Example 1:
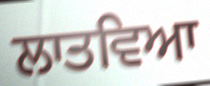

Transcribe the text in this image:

ਲਾਤਵਿਆ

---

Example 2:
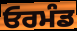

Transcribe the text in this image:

ਓਰਮੰਡ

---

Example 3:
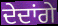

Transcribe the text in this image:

ਦੇਦਾਂਗੇ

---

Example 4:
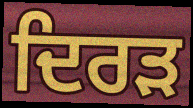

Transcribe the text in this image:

ਦਿਰੜ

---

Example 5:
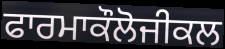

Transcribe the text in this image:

ਫਾਰਮਾਕੌਲੋਜੀਕਲ